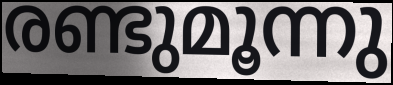
രണ്ടുമൂന്നു